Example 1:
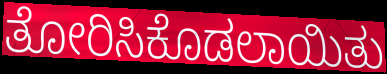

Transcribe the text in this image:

ತೋರಿಸಿಕೊಡಲಾಯಿತು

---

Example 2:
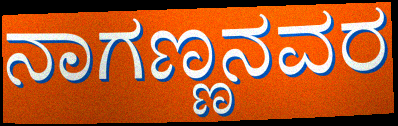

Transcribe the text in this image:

ನಾಗಣ್ಣನವರ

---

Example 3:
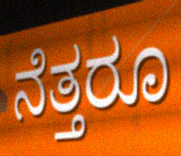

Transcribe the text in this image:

ನೆತ್ತರೂ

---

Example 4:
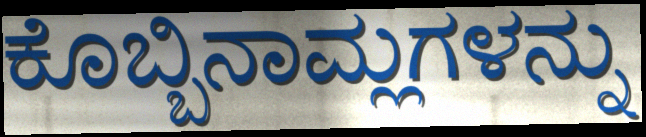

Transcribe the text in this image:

ಕೊಬ್ಬಿನಾಮ್ಲಗಳನ್ನು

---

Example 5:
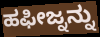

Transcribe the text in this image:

ಹಫೀಜ್ನನ್ನು